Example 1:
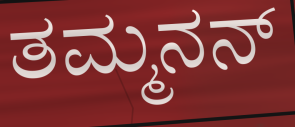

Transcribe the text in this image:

ತಮ್ಮನನ್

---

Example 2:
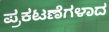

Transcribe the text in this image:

ಪ್ರಕಟಣೆಗಳಾದ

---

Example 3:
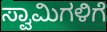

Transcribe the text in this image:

ಸ್ವಾಮಿಗಳಿಗೆ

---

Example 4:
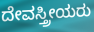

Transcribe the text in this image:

ದೇವಸ್ತ್ರೀಯರು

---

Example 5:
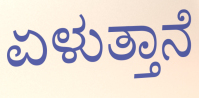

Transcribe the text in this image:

ಏಳುತ್ತಾನೆ